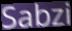
Sabzi